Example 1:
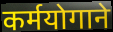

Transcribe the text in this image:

कर्मयोगाने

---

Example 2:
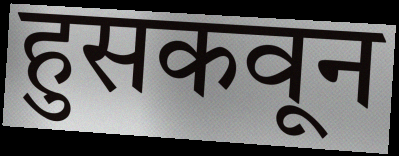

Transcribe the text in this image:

हुसकवून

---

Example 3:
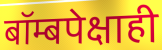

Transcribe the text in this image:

बॉम्बपेक्षाही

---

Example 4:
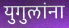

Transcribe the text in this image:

युगुलांना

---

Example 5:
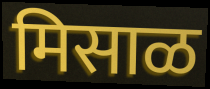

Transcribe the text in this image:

मिसाळ